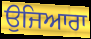
ਉਜਿਆਰਾ